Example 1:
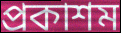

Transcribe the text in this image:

প্ৰকাশম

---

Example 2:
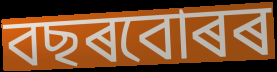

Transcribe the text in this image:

বছৰবোৰৰ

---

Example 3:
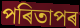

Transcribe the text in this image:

পৰিতাপৰ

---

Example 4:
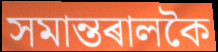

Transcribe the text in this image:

সমান্তৰালকৈ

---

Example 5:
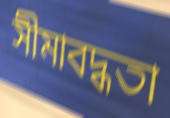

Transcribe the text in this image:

সীমাবদ্ধতা